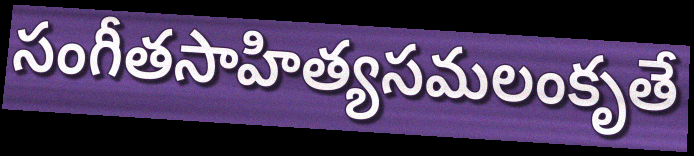
సంగీతసాహిత్యసమలంకృతే